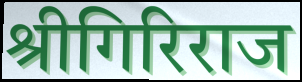
श्रीगिरिराज